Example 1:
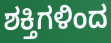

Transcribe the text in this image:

ಶಕ್ತಿಗಳಿಂದ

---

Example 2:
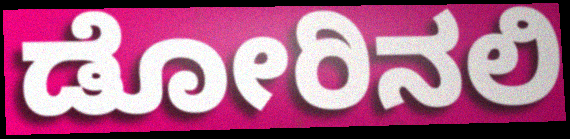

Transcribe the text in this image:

ಡೋರಿನಲಿ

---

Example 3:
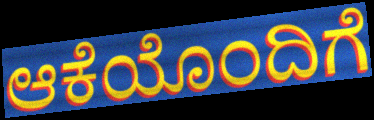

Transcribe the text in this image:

ಆಕೆಯೊಂದಿಗೆ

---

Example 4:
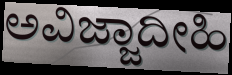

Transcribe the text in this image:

ಅವಿಜ್ಜಾದೀಹಿ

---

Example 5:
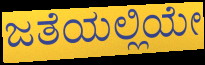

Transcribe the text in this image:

ಜತೆಯಲ್ಲಿಯೇ